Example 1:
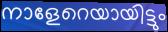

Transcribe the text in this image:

നാളേറെയായിട്ടും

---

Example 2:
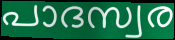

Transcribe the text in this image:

പാദസ്വര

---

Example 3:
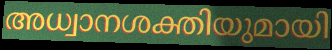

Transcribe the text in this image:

അധ്വാനശക്തിയുമായി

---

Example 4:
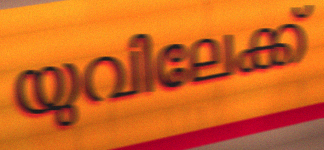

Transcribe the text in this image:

യുവിലേക്ക്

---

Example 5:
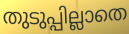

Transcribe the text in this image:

തുടുപ്പില്ലാതെ